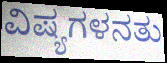
ವಿಷ್ಯಗಳನತು